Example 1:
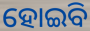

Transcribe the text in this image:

ହୋଇିବ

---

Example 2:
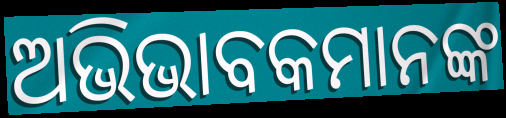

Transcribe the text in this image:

ଅଭିଭାବକମାନଙ୍କ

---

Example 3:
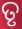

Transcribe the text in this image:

ତୃ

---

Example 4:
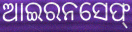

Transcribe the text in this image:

ଆଇରନସେଫ୍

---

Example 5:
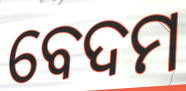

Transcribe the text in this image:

ବେଦମ